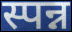
स्पन्न